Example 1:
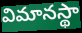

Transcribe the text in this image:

విమానస్థా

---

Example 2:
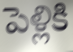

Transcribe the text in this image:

పెళ్లికి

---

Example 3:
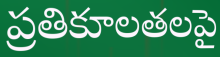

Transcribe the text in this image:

ప్రతికూలతలపై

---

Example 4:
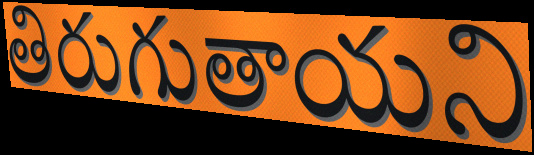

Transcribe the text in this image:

తిరుగుతాయని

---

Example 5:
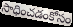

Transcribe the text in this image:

సాధించడంకోసం